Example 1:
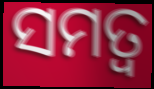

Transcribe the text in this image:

ସମତ୍ଵ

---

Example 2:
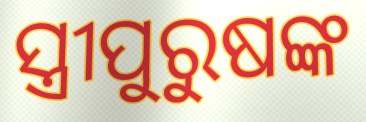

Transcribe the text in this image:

ସ୍ତ୍ରୀପୁରୁଷଙ୍କ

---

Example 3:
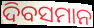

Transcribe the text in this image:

ଦିବସମାନ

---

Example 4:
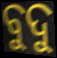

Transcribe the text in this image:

ବୁଦୁ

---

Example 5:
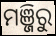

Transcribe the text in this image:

ମଞ୍ଜିରୁ